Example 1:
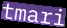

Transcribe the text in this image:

tmari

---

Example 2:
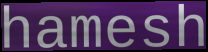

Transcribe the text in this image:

hamesh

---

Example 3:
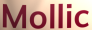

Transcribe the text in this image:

Mollic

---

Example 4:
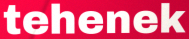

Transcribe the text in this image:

tehenek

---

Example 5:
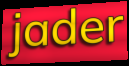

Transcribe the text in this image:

jader